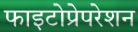
फाइटोप्रेपरेशन